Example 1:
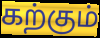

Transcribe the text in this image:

கற்கும்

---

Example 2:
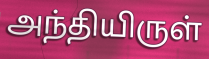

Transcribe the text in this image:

அந்தியிருள்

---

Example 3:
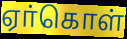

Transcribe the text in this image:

ஏர்கொள்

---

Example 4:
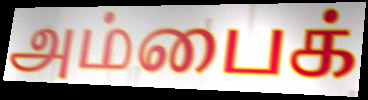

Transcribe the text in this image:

அம்பைக்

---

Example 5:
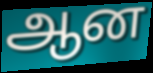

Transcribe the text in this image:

ஆன